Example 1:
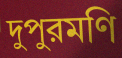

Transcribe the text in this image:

দুপুরমণি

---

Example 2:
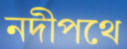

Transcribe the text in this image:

নদীপথে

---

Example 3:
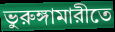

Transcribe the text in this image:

ভুরুঙ্গামারীতে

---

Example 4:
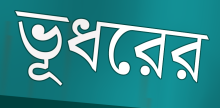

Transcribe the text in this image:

ভূধরের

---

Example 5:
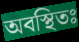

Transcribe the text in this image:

অবস্থিতঃ